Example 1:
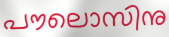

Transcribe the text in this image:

പൗലൊസിനു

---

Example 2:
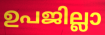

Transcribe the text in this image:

ഉപജില്ലാ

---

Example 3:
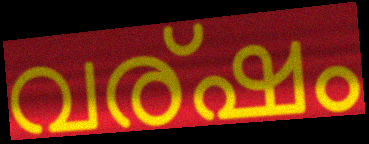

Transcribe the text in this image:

വര്ഷം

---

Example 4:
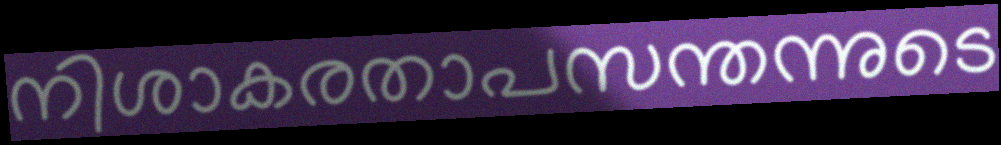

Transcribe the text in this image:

നിശാകരതാപസന്തന്നുടെ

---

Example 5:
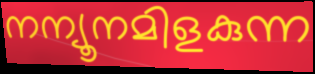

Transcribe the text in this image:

നന്യൂനമിളകുന്ന